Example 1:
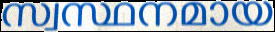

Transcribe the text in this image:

സ്വസ്ഥനമായ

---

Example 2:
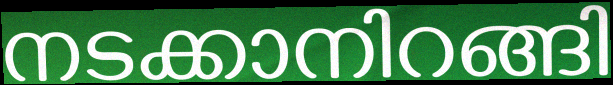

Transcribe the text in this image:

നടക്കാനിറങ്ങി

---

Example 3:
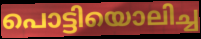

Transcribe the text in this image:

പൊട്ടിയൊലിച്ച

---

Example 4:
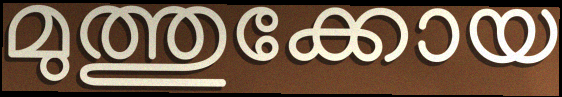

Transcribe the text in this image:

മുത്തുക്കോയ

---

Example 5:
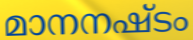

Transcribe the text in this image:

മാനനഷ്ടം